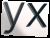
yx